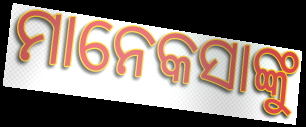
ମାନେକସାଙ୍କୁ